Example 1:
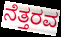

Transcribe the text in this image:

ನೆತ್ತರವ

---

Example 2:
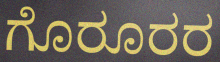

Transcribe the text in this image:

ಗೊರೂರರ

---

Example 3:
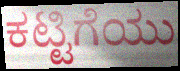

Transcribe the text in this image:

ಕಟ್ಟಿಗೆಯು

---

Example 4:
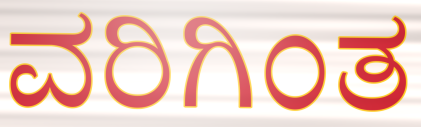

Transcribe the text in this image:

ವರಿಗಿಂತ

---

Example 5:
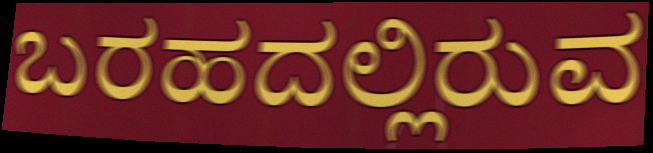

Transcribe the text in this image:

ಬರಹದಲ್ಲಿರುವ